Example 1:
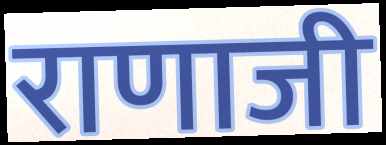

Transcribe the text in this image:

राणाजी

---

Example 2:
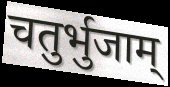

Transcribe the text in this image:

चतुर्भुजाम्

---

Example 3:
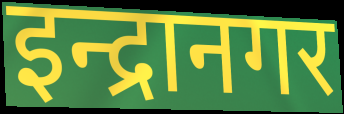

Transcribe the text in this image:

इन्द्रानगर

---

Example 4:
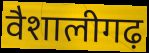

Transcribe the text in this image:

वैशालीगढ़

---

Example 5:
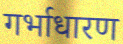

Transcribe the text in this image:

गर्भाधारण